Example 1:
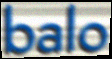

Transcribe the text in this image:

balo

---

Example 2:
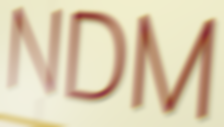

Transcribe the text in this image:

NDM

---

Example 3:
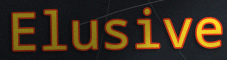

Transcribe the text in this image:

Elusive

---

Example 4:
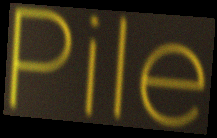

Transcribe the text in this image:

Pile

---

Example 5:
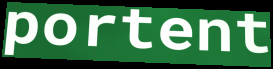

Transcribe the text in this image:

portent